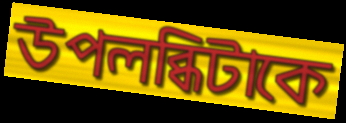
উপলব্ধিটাকে